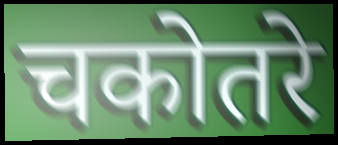
चकोतरे